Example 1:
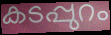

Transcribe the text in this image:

കടപ്പുറം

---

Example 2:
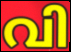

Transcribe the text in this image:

വി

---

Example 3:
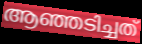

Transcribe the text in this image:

ആഞ്ഞടിച്ചത്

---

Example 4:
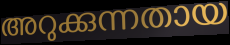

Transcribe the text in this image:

അറുക്കുന്നതായ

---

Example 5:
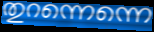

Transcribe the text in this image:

തുറന്നെന്നെ